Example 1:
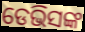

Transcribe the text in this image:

ଡେଭିସଙ୍କ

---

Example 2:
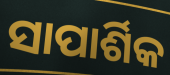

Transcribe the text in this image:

ସାପାର୍ଶିକ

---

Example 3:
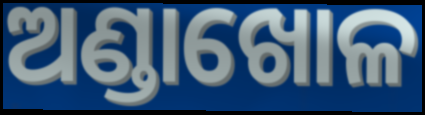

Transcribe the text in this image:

ଅଣ୍ଡାଖୋଳ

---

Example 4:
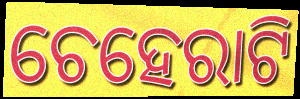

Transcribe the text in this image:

ଚେହେରାଟି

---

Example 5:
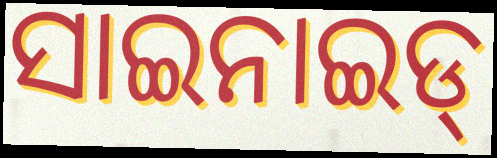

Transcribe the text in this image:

ସାଇନାଇଡ୍